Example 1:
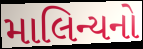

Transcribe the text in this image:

માલિન્યનો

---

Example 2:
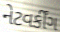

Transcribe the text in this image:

નેટવર્કીંગ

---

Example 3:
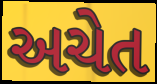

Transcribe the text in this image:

અચેત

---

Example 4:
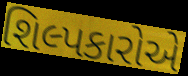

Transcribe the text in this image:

શિલ્પકારોએ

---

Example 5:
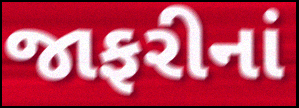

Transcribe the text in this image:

જાફરીનાં